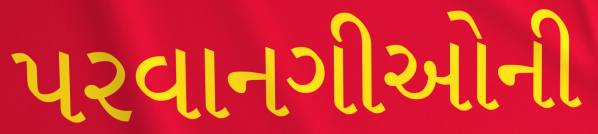
પરવાનગીઓની